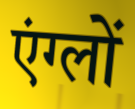
एंग्लों